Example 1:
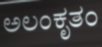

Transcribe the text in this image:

ಅಲಂಕೃತಂ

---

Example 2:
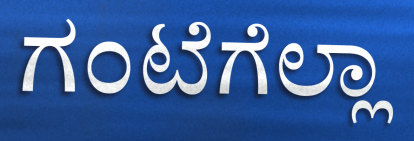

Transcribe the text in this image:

ಗಂಟೆಗೆಲ್ಲಾ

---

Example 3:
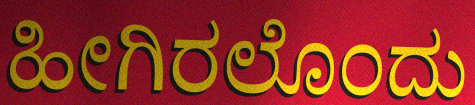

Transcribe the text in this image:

ಹೀಗಿರಲೊಂದು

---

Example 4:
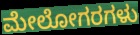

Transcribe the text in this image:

ಮೇಲೋಗರಗಳು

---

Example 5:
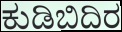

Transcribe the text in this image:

ಕುಡಿಬಿದಿರ